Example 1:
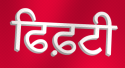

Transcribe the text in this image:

ਫਿਫ਼ਟੀ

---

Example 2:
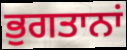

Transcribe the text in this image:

ਭੁਗਤਾਨਾਂ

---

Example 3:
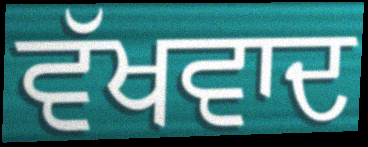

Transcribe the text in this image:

ਵੱਖਵਾਦ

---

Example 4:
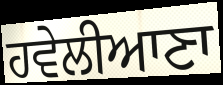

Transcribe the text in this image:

ਹਵੇਲੀਆਣਾ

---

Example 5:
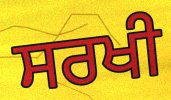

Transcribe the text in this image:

ਸਰਖੀ